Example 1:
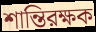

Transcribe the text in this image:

শান্তিরক্ষক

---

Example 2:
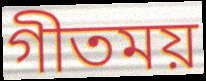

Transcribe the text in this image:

গীতময়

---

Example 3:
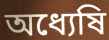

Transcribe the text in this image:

অধ্যেষি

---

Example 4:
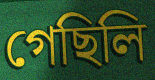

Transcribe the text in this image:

গেছিলি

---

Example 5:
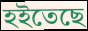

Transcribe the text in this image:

হইতেছে